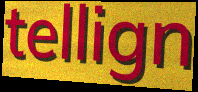
tellign